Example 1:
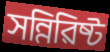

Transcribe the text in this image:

সন্নিৱিষ্ট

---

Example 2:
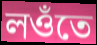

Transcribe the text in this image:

লওঁতে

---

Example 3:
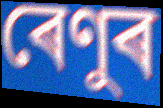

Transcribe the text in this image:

ৰেণুৰ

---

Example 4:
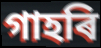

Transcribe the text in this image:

গাহৰি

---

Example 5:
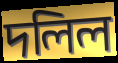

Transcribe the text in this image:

দলিল